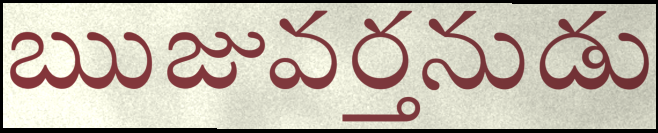
ఋజువర్తనుడు